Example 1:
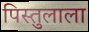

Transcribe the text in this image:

पिस्तुलाला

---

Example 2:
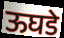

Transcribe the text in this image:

ऊघडे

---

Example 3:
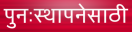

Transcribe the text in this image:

पुनःस्थापनेसाठी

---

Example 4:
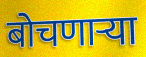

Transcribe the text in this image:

बोचणाऱ्या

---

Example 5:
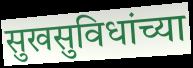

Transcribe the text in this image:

सुखसुविधांच्या